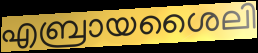
എബ്രായശൈലി